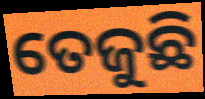
ତେଜୁଛି